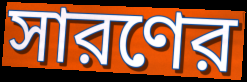
সারণের